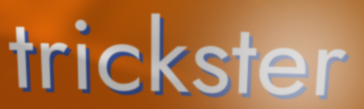
trickster